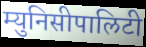
म्युनिसीपालिटी